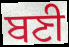
ਬਣੀ